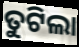
ତୁଟିଲା